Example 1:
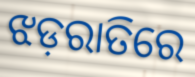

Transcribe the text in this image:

ଝଡ଼ରାତିରେ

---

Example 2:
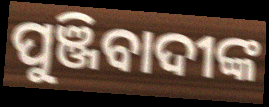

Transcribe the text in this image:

ପୁଞ୍ଜିବାଦୀଙ୍କ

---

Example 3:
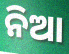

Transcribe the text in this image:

ନିଆ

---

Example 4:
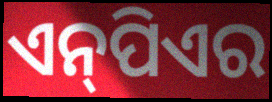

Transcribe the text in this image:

ଏନ୍‌ପିଏର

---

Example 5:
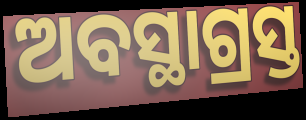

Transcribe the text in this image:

ଅବସ୍ଥାଗ୍ରସ୍ତ